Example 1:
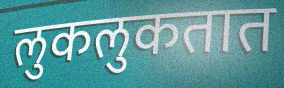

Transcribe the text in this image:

लुकलुकतात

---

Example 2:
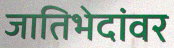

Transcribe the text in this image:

जातिभेदांवर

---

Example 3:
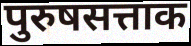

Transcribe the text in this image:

पुरुषसत्ताक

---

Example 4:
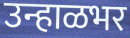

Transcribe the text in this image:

उन्हाळभर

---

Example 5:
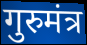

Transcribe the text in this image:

गुरुमंत्र